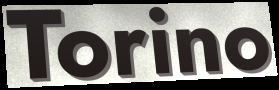
Torino